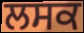
ਲਸਕ